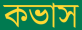
কভাস